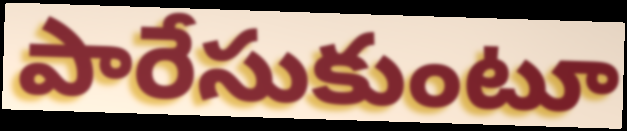
పారేసుకుంటూ